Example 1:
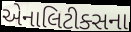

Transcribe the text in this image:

એનાલિટીક્સના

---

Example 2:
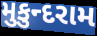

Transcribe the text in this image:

મુકુન્દરામ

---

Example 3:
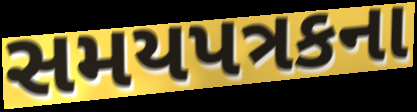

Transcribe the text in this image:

સમયપત્રકના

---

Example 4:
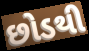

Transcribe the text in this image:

છોડથી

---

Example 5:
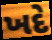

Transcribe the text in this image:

ખદે